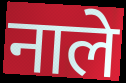
नाले